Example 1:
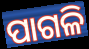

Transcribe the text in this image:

ପାଗଳି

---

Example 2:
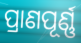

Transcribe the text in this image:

ପ୍ରାଣପୂର୍ଣ୍ଣ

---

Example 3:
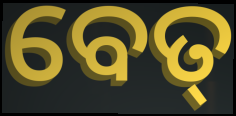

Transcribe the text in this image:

ବେତ୍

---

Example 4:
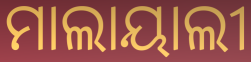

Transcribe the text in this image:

ମାଲାୟାଲୀ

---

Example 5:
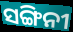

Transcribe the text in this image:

ସଙ୍ଗିନୀ